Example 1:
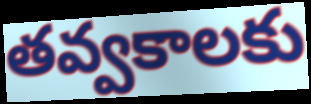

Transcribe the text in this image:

తవ్వకాలకు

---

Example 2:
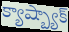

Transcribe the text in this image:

క్యాష్బ్యాక్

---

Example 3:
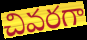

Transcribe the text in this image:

చివరగా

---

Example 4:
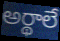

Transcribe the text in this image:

అర్థాలే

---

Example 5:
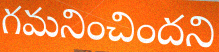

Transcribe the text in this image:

గమనించిందని